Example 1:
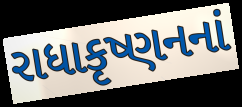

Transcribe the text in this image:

રાધાકૃષ્ણનનાં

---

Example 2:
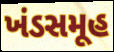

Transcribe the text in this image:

ખંડસમૂહ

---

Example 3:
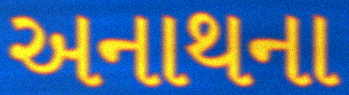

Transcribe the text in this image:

અનાથના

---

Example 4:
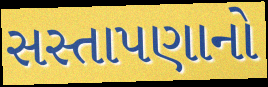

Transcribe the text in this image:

સસ્તાપણાનો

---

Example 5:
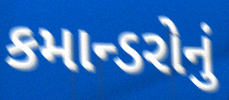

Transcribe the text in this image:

કમાન્ડરોનું